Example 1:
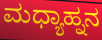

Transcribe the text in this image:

ಮಧ್ಯಾಹ್ನನ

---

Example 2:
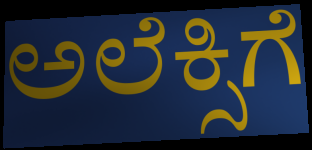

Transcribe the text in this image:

ಅಲೆಕ್ಸಿಗೆ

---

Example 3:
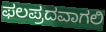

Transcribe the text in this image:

ಫಲಪ್ರದವಾಗಲಿ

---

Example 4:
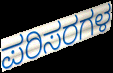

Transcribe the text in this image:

ಪರಿಸರಗಳ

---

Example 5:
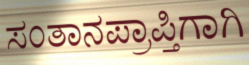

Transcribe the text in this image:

ಸಂತಾನಪ್ರಾಪ್ತಿಗಾಗಿ